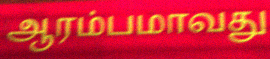
ஆரம்பமாவது